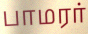
பாமரர்